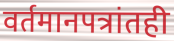
वर्तमानपत्रांतही